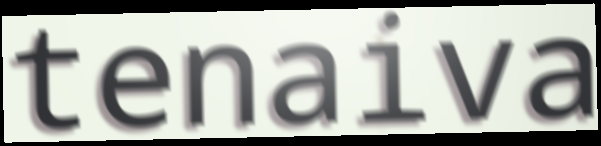
tenaiva